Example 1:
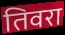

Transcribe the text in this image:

तिवरा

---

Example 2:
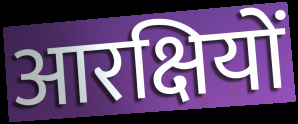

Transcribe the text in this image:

आरक्षियों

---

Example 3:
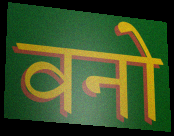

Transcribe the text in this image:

वनो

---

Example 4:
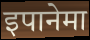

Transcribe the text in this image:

इपानेमा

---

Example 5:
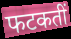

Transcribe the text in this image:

फटकतीं